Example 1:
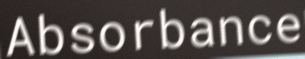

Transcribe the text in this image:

Absorbance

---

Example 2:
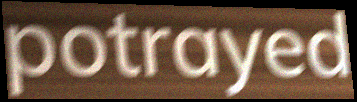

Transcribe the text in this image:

potrayed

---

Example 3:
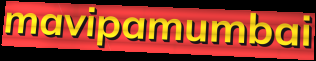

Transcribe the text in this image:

mavipamumbai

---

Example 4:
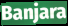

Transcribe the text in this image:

Banjara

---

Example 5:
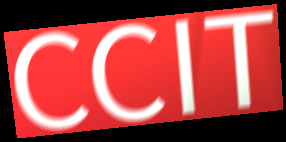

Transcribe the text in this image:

CCIT